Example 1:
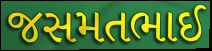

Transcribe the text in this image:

જસમતભાઈ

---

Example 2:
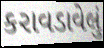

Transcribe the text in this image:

કરાવડાવેલું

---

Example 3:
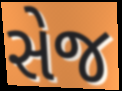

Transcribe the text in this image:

સેજ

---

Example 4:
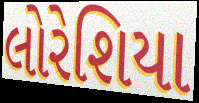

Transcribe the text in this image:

લોરેશિયા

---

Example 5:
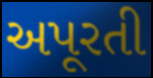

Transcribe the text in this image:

અપૂરતી